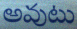
అవుటు